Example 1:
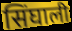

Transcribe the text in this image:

सिंघाली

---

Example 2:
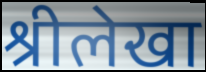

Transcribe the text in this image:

श्रीलेखा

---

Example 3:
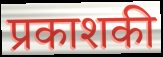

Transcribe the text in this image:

प्रकाशकी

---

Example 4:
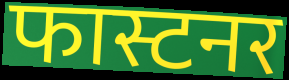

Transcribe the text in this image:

फास्टनर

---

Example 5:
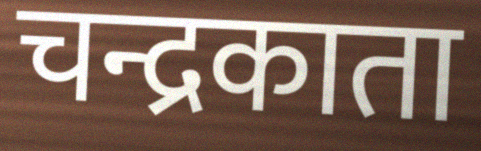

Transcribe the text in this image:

चन्द्रकाता